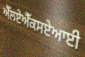
ਐੱਲਏਐੱਕਸਏਆਈ